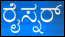
ರೈಸ್ನರ್